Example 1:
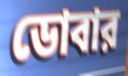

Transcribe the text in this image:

ডোবার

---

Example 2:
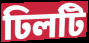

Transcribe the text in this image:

ঢিলটি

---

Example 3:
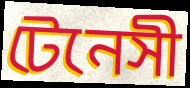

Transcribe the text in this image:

টেনেসী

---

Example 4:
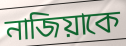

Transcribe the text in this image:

নাজিয়াকে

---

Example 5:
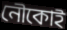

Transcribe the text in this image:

নৌকোই